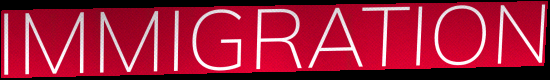
IMMIGRATION